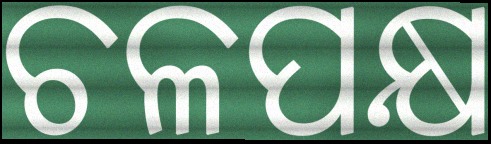
ଚଳପକ୍ଷ